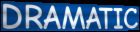
DRAMATIC